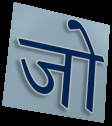
जो